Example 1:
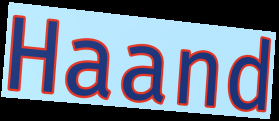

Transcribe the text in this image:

Haand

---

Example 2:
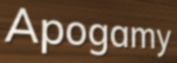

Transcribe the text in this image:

Apogamy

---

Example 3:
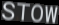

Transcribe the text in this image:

STOW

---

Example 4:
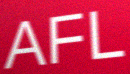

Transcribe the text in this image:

AFL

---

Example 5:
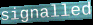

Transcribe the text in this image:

signalled